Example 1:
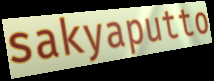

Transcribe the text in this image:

sakyaputto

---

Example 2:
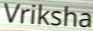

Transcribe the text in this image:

Vriksha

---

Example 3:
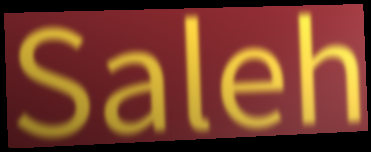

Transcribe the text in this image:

Saleh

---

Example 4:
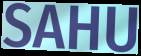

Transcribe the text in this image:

SAHU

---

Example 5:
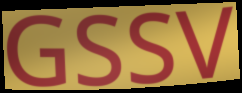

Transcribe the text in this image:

GSSV